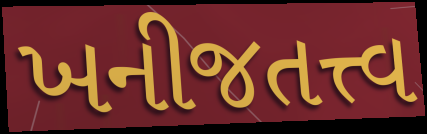
ખનીજતત્ત્વ